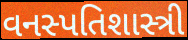
વનસ્પતિશાસ્ત્રી